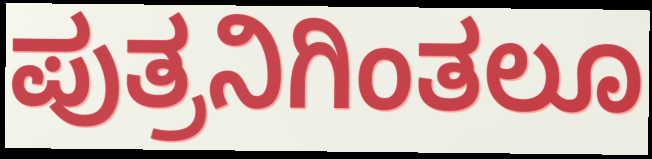
ಪುತ್ರನಿಗಿಂತಲೂ